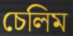
চেলিম